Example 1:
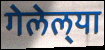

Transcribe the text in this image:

गेलेल्या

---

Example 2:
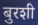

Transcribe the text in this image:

बुरशी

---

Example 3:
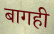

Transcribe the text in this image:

बागही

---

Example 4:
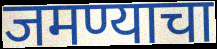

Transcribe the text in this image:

जमण्याचा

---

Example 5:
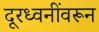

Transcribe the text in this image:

दूरध्वनींवरून